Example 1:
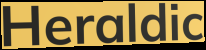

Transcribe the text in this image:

Heraldic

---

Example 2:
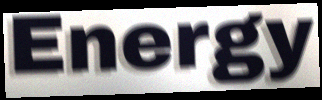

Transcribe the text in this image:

Energy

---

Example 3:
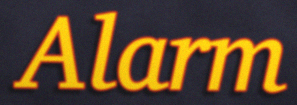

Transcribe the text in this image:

Alarm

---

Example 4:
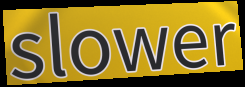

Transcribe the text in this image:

slower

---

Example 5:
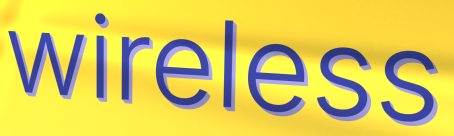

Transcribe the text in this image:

wireless